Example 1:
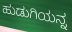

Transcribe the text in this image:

ಹುಡುಗಿಯನ್ನ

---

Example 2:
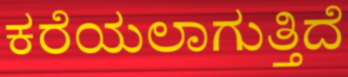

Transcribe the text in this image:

ಕರೆಯಲಾಗುತ್ತಿದೆ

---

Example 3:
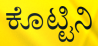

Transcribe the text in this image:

ಕೊಟ್ಟಿನಿ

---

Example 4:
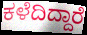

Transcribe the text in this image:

ಕಳೆದಿದ್ದಾರೆ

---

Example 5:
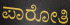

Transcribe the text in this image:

ಪಾರೋತಿ